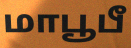
மாபூபீ